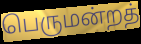
பெருமன்றத்